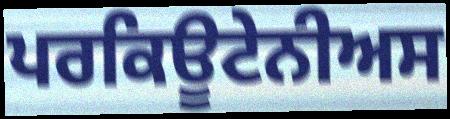
ਪਰਕਿਊਟੇਨੀਅਸ